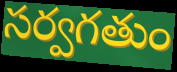
సర్వగతుం